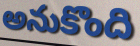
అనుకొంది